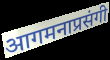
आगमनाप्रसंगी